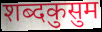
शब्दकुसुम